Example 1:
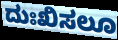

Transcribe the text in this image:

ದುಃಖಿಸಲೂ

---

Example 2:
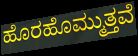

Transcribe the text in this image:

ಹೊರಹೊಮ್ಮುತ್ತವೆ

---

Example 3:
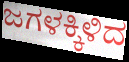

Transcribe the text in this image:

ಜಗಳಕ್ಕಿಳಿದ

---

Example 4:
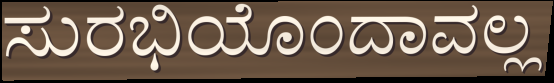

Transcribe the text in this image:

ಸುರಭಿಯೊಂದಾವಲ್ಲ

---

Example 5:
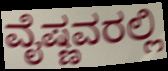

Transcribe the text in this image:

ವೈಷ್ಣವರಲ್ಲಿ